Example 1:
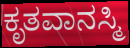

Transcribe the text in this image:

ಕೃತವಾನಸ್ಮಿ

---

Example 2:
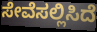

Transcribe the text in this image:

ಸೇವೆಸಲ್ಲಿಸಿದೆ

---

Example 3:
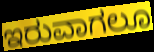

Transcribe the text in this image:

ಇರುವಾಗಲೂ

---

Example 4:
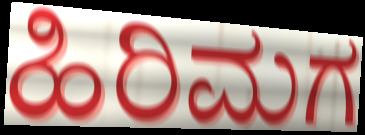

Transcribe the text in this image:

ಹಿರಿಮಗ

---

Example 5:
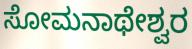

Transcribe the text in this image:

ಸೋಮನಾಥೇಶ್ವರ